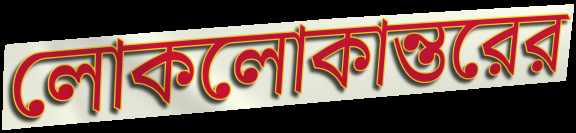
লোকলোকান্তরের